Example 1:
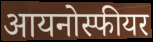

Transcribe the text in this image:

आयनोस्फीयर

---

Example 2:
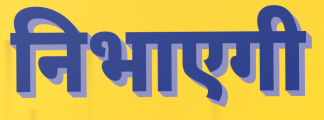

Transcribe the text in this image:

निभाएगी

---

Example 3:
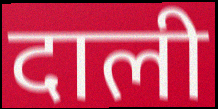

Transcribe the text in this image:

दाली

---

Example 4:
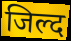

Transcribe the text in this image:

जिल्द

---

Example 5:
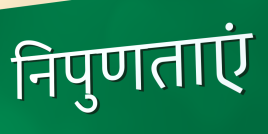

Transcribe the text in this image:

निपुणताएं